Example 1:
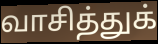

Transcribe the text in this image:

வாசித்துக்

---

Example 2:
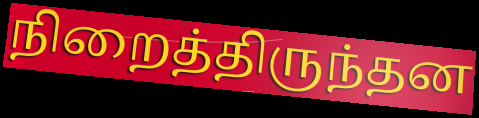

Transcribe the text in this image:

நிறைத்திருந்தன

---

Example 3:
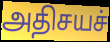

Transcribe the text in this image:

அதிசயச்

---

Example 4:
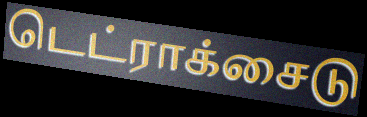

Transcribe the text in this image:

டெட்ராக்சைடு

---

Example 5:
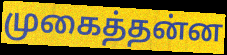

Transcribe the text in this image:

முகைத்தன்ன